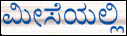
ಮೀಸೆಯಲ್ಲಿ